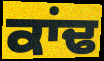
ਕਾਂਢ